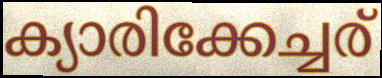
ക്യാരിക്കേച്ചര്